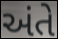
અંતે